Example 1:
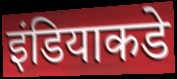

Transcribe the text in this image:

इंडियाकडे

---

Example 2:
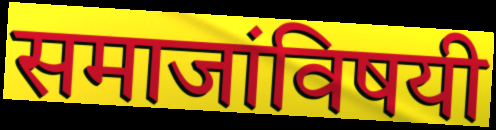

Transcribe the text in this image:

समाजांविषयी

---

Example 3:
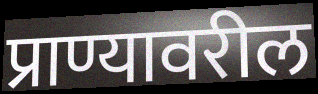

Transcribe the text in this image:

प्राण्यावरील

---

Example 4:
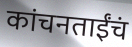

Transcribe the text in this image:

कांचनताईंचं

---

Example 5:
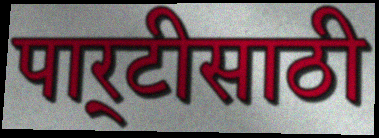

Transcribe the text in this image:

पार्टीसाठी